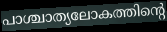
പാശ്ചാത്യലോകത്തിന്റെ